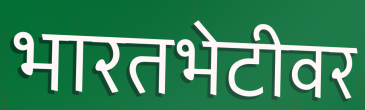
भारतभेटीवर